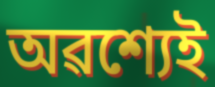
অৱশ্যেই